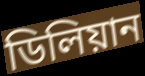
ডিলিয়ান